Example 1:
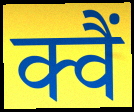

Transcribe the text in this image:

क्वैं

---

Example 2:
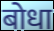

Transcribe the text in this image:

बोधा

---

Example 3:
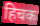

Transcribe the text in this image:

हिचक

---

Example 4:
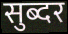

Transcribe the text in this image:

सुब्दर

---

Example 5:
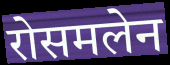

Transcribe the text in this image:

रोसमलेन